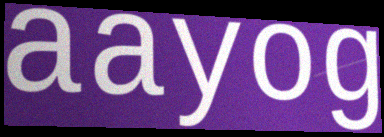
aayog